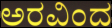
ಅರವಿಂದ